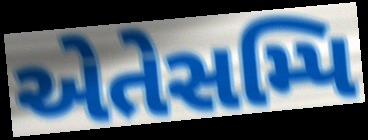
એતેસમ્પિ